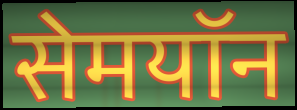
सेमयॉन